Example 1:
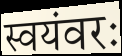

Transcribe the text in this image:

स्वयंवरः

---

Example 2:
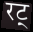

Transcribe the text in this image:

रट्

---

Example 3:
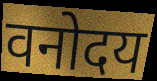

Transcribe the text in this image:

वनोदय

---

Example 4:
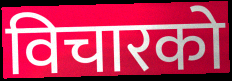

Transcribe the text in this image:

विचारको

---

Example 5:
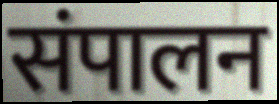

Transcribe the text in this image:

संपालन